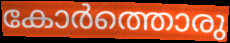
കോർത്തൊരു